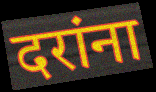
दरांना